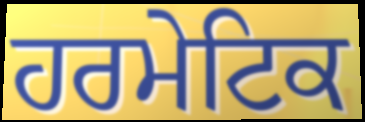
ਹਰਮੇਟਿਕ